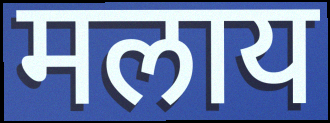
मलाय